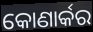
କୋଣାର୍କର